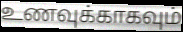
உணவுக்காகவும்